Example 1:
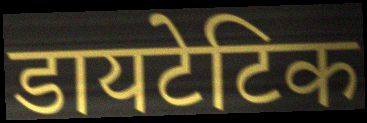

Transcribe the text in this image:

डायटेटिक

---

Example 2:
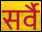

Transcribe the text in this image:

सर्वै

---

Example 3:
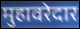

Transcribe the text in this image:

मुहावरेदार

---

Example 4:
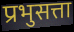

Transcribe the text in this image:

प्रभुसत्ता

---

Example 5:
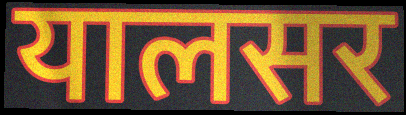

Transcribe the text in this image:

यालसर